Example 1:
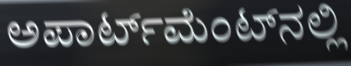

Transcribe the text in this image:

ಅಪಾರ್ಟ್‌ಮೆಂಟ್‌ನಲ್ಲಿ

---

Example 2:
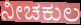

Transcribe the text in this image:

ನೀಚಕುಲ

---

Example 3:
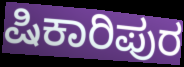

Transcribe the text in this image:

ಷಿಕಾರಿಪುರ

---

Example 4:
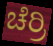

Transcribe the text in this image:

ಚೆರ್ರಿ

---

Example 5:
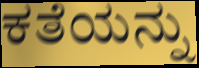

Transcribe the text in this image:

ಕತೆಯನ್ನು